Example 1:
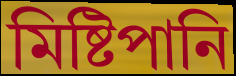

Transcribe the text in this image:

মিষ্টিপানি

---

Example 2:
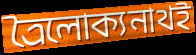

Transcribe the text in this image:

ত্রৈলোক্যনাথই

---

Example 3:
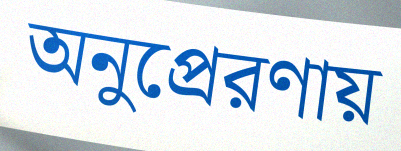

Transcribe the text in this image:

অনুপ্রেরণায়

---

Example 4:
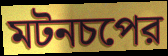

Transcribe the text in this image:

মটনচপের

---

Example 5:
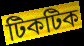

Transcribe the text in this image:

টিকটিক